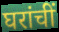
घरांचीं